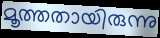
മൂത്തതായിരുന്നു